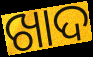
ଖାଦ